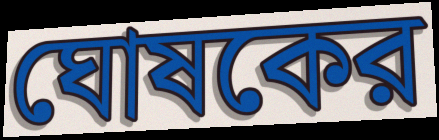
ঘোষকের